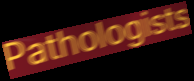
Pathologists